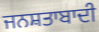
ਜਨਸ਼ਤਾਬਾਦੀ